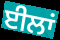
ਈਲਾਂ